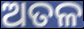
ଅତଳ